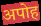
अपोह